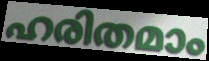
ഹരിതമാം